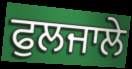
ਫੁਲਜਾਲੇ